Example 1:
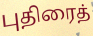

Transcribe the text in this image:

புதிரைத்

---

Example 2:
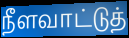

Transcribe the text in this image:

நீளவாட்டுத்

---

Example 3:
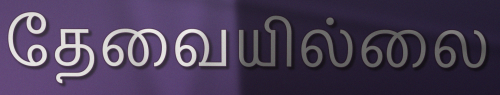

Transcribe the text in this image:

தேவையில்லை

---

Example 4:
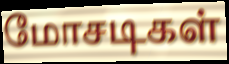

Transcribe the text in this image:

மோசடிகள்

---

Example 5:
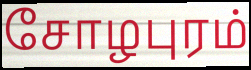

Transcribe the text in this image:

சோழபுரம்